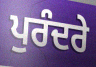
ਪੁਰੰਦਰੇ